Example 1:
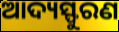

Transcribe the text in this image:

ଆଦ୍ୟସ୍ଫୁରଣ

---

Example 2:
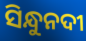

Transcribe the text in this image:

ସିନ୍ଧୁନଦୀ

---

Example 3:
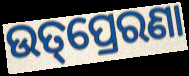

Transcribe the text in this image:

ଉତ୍‌ପ୍ରେରଣା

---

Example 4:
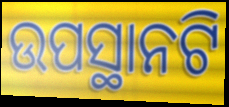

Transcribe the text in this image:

ଉପସ୍ଥାନଟି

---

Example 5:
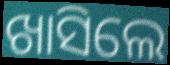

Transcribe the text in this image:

ଖାସିଲେ